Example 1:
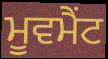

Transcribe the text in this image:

ਮੂਵਮੈਂਟ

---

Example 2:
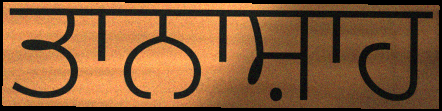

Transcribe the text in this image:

ਤਾਨਾਸ਼ਾਹ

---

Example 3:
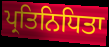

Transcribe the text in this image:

ਪ੍ਰਤਿਨਿਧਿਤਾ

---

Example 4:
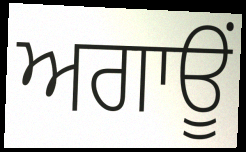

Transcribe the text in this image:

ਅਗਾਊਂ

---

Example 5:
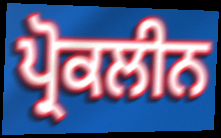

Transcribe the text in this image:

ਪ੍ਰੋਕਲੀਨ